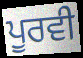
ਪੂਰਵੀ